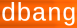
dbang